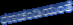
ರಣಚಂಡಿಯಂತೆ